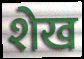
शेख